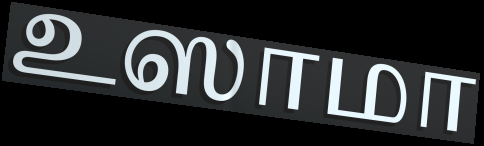
உஸாமா